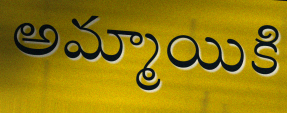
అమ్మాయికి